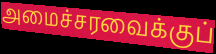
அமைச்சரவைக்குப்